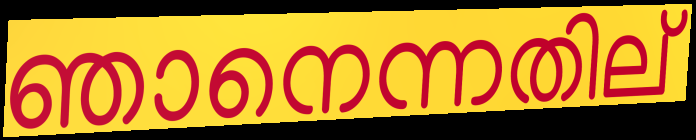
ഞാനെന്നതില്